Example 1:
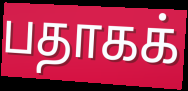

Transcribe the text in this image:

பதாகக்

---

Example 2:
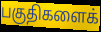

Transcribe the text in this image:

பகுதிகளைக்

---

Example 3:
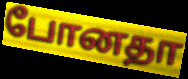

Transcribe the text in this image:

போனதா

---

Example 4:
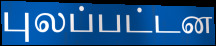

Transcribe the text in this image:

புலப்பட்டன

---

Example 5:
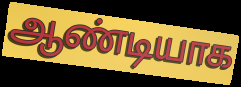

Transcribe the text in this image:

ஆண்டியாக